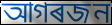
আগৰজন